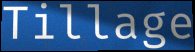
Tillage